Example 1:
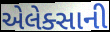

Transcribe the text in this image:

એલેક્સાની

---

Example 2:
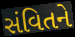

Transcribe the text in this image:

સંવિતને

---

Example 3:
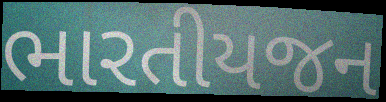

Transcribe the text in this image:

ભારતીયજન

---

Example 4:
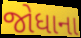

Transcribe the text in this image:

જોધાના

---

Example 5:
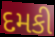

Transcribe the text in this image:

દમકી